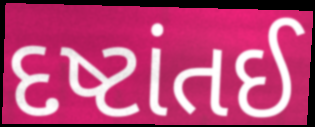
દષ્ટાંતઈ